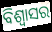
ବିଶ୍ୱାସର